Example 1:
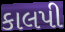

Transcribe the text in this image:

કાલપી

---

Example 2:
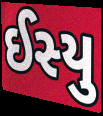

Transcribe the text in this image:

ઈસ્યુ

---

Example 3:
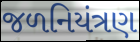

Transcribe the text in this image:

જળનિયંત્રણ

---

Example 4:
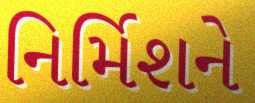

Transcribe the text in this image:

નિર્મિશને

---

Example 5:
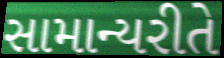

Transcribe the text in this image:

સામાન્યરીતે